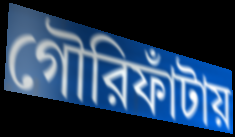
গৌরিফাঁটায়